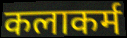
कलाकर्म